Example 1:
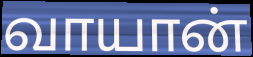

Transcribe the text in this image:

வாயான்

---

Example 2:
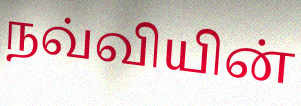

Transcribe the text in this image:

நவ்வியின்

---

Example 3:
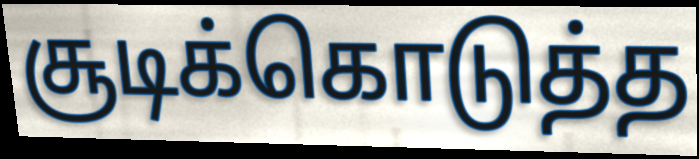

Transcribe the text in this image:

சூடிக்கொடுத்த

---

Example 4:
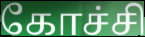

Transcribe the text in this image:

கோச்சி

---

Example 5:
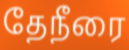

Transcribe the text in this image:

தேநீரை